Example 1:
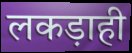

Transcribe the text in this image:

लकड़ाही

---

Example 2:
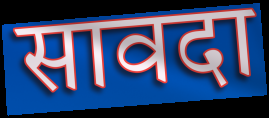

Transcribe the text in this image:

सावदा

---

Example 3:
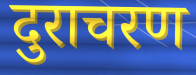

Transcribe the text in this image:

दुराचरण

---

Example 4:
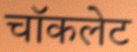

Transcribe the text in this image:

चॉकलेट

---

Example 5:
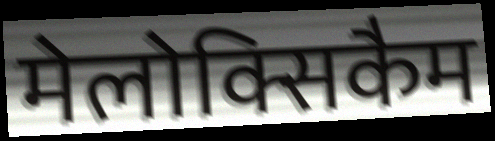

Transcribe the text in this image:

मेलोक्सिकैम